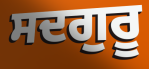
ਸਦਗੁਰੂ